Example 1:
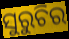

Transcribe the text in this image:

ସୁରୁଚିର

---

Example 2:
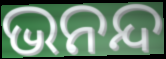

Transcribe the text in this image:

ଭନନ୍ଦ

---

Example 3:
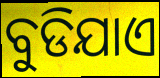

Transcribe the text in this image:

ବୁଡିଯାଏ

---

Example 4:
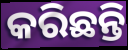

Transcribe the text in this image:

କରିଛନ୍ତି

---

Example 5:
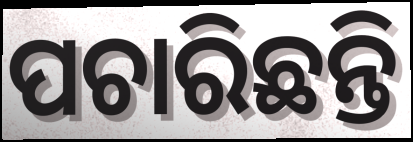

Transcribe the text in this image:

ପଚାରିଛନ୍ତି